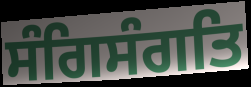
ਸੰਗਿਸੰਗਤਿ